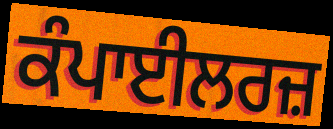
ਕੰਪਾਈਲਰਜ਼